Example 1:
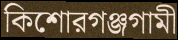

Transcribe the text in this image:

কিশোরগঞ্জগামী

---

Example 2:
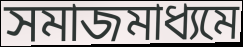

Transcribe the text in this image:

সমাজমাধ্যমে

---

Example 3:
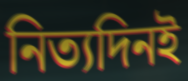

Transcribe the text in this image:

নিত্যদিনই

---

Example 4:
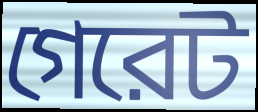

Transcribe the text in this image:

গেরেট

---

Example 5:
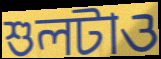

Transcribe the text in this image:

শুলটাও